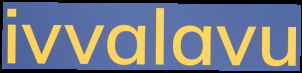
ivvalavu